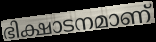
ഭിക്ഷാടനമാണ്